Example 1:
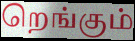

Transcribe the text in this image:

றெங்கும்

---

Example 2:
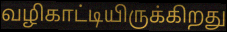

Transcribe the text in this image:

வழிகாட்டியிருக்கிறது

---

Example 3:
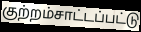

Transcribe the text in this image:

குற்றம்சாட்டப்பட்டு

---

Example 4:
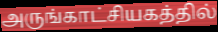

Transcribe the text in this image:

அருங்காட்சியகத்தில்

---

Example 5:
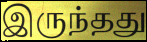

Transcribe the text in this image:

இருந்தது